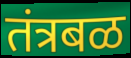
तंत्रबळ